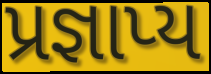
પ્રજ્ઞાપ્ય